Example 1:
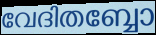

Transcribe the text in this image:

വേദിതബ്ബോ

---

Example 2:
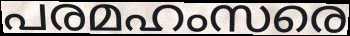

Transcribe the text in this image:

പരമഹംസരെ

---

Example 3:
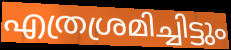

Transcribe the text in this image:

എത്രശ്രമിച്ചിട്ടും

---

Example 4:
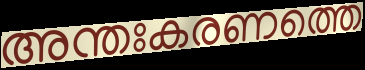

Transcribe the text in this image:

അന്തഃകരണത്തെ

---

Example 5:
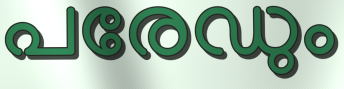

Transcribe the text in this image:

പരേഡും